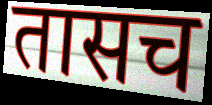
तासच